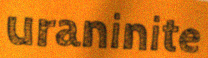
uraninite